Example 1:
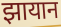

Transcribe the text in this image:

झायान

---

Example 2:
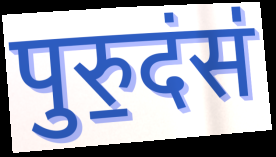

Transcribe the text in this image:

पुरु॒दंसं॑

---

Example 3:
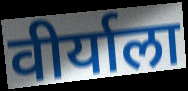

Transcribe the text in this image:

वीर्याला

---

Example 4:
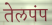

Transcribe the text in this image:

तेलपंप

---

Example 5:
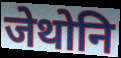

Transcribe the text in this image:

जेथोनि